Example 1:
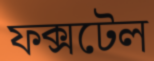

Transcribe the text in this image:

ফক্সটেল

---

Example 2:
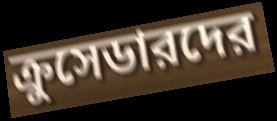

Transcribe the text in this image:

ক্রুসেডারদের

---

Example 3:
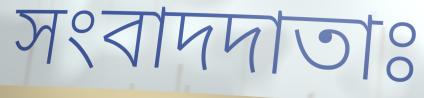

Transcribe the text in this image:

সংবাদদাতাঃ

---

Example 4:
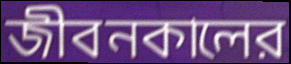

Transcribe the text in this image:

জীবনকালের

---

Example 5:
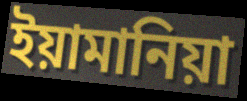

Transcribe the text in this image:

ইয়ামানিয়া